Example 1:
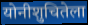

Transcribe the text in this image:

योनीशुचितेला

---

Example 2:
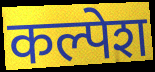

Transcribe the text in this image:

कल्पेश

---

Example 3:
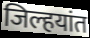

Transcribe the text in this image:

जिल्हयांत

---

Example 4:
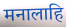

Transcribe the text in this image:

मनालाहि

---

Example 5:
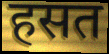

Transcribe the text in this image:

हसत